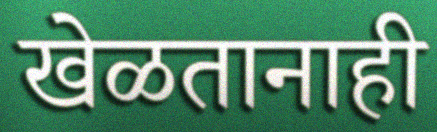
खेळतानाही